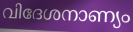
വിദേശനാണ്യം